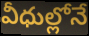
వీధుల్లోనే